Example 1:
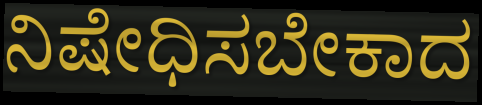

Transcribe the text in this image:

ನಿಷೇಧಿಸಬೇಕಾದ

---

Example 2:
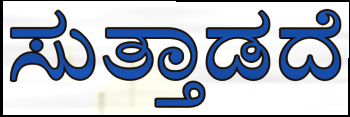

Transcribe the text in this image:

ಸುತ್ತಾಡದೆ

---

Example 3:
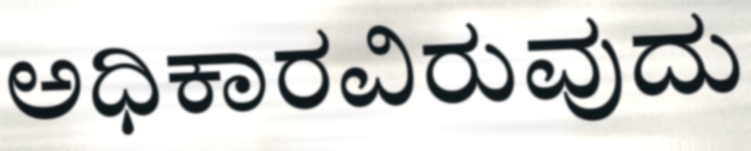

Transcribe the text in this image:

ಅಧಿಕಾರವಿರುವುದು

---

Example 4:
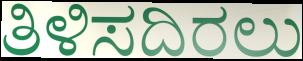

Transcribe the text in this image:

ತಿಳಿಸದಿರಲು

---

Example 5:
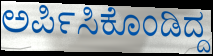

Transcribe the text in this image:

ಅರ್ಪಿಸಿಕೊಂಡಿದ್ದ